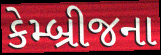
કેમ્બ્રીજના